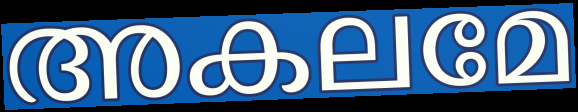
അകലമേ